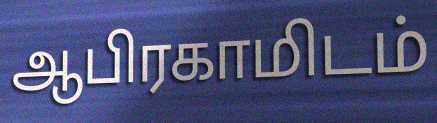
ஆபிரகாமிடம்